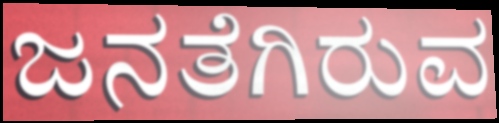
ಜನತೆಗಿರುವ